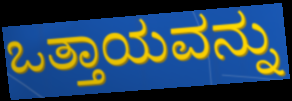
ಒತ್ತಾಯವನ್ನು